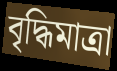
বৃদ্ধিমাত্রা